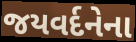
જયવર્દનેના